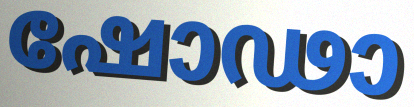
ഷോഢാ